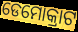
ଡେମୋକ୍ରାଟ